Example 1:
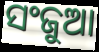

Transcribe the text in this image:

ସଂଜୁଆ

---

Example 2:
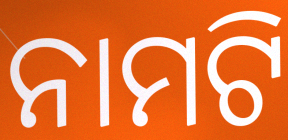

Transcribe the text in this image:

ନାମଟି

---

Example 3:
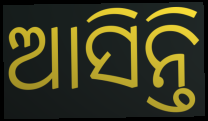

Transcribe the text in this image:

ଆସିନ୍ତି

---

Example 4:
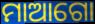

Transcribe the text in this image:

ମାଆଗୋ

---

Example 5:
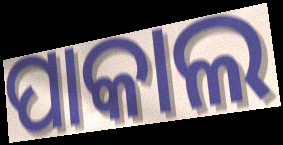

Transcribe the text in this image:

ପାକାଲ